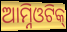
ଆମ୍ନିଓଟିକ୍